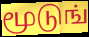
மூடுங்